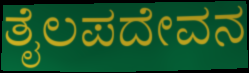
ತೈಲಪದೇವನ